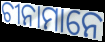
ଚୀନାମାନେ